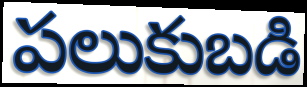
పలుకుబడి